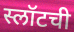
स्लॉटची